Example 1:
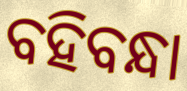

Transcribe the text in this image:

ବହିବନ୍ଧା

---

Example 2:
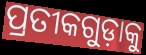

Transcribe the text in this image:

ପ୍ରତୀକଗୁଡ଼ାକୁ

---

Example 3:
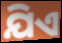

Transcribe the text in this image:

ଯିଏ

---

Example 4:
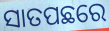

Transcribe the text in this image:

ସାତପଛରେ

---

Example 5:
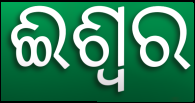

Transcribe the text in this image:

ଈଶ୍ବର